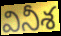
వినీశ